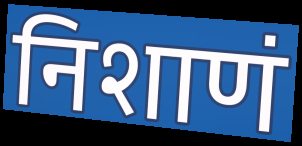
निशाणं